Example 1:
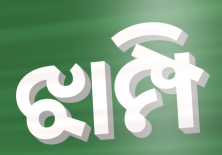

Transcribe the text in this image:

ଝାମ୍ପି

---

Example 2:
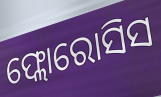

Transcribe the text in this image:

ଫ୍ଲୋରୋସିସ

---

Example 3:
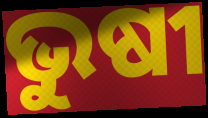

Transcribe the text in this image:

ଭୁଷୀ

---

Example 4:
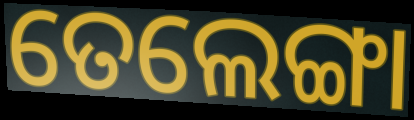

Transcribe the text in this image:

ତେଲେଙ୍ଗା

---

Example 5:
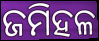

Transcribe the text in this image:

ଜମିହଳ